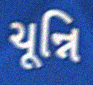
ચૂન્નિ